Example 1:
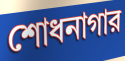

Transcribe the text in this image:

শোধনাগার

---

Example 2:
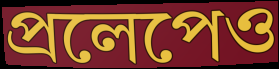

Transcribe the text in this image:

প্রলেপেও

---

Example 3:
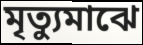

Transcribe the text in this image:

মৃত্যুমাঝে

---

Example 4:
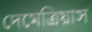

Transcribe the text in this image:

দেমেত্রিয়াস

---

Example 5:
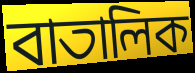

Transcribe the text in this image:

বাতালিক